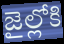
జైల్లోకి